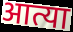
आत्या